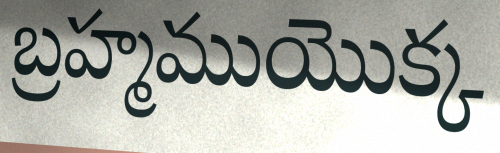
బ్రహ్మముయొక్క